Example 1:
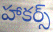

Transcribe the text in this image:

హాకర్స్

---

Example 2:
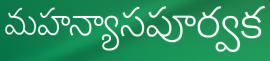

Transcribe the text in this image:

మహన్యాసపూర్వక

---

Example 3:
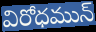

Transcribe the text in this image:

విరోధమున్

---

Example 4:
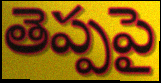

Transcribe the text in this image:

తెప్పపై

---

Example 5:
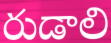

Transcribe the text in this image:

రుడాలి